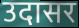
उदासर